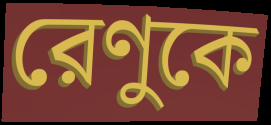
রেণুকে